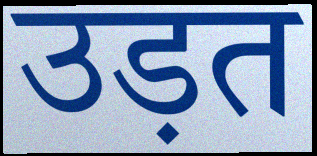
उड़त